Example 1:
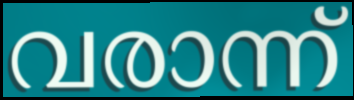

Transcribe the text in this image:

വരാന്ന്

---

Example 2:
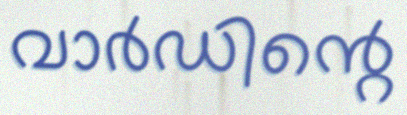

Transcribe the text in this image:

വാർഡിന്റെ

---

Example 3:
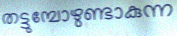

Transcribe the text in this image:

തട്ടുമ്പോഴുണ്ടാകുന്ന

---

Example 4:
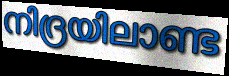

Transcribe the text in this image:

നിദ്രയിലാണ്ട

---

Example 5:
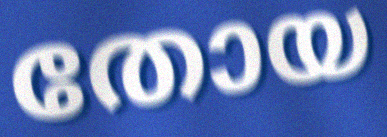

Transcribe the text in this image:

തോയ